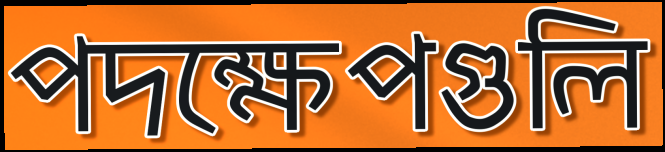
পদক্ষেপগুলি